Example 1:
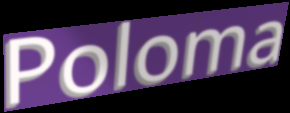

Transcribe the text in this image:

Poloma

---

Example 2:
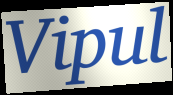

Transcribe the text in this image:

Vipul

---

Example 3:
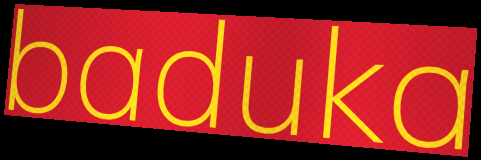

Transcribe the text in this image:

baduka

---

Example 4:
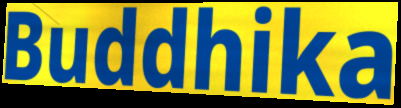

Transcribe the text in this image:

Buddhika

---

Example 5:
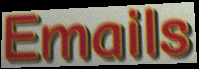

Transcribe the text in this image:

Emails